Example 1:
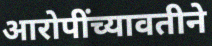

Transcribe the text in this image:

आरोपींच्यावतीने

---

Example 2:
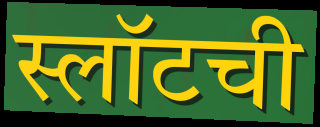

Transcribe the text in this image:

स्लॉटची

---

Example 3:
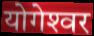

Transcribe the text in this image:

योगेश्‍वर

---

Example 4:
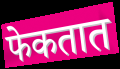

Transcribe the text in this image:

फेकतात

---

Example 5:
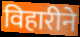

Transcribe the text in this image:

विहारीने